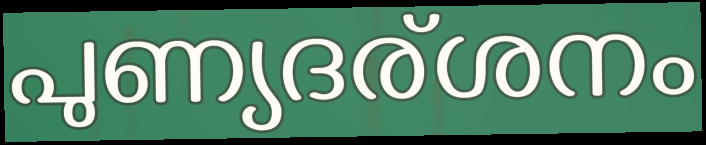
പുണ്യദര്ശനം